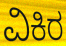
ವಿಕಿರ